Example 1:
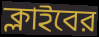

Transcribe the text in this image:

ক্লাইবের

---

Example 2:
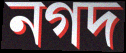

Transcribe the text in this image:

নগদ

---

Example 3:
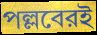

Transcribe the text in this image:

পল্লবেরই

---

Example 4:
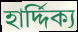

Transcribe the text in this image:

হার্দ্দিক্য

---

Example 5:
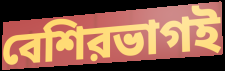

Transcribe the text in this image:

বেশিরভাগই